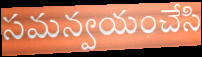
సమన్వయంచేసి